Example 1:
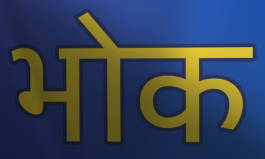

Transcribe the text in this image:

भोक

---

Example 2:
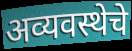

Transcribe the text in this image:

अव्यवस्थेचे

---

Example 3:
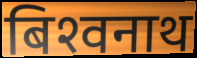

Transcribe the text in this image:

बिश्वनाथ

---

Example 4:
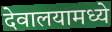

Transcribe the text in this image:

देवालयामध्ये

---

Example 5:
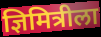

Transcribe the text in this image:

ज्ञिमित्रीला